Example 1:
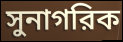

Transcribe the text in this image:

সুনাগরিক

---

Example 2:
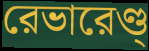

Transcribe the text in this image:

রেভারেণ্ড্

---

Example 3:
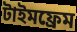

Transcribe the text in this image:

টাইমফ্রেম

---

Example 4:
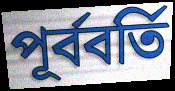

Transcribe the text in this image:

পূর্ববর্তি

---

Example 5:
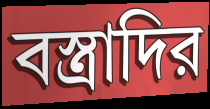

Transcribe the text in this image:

বস্ত্রাদির